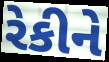
રેકીને